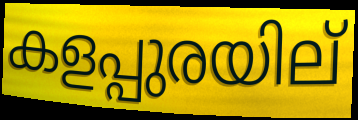
കളപ്പുരയില്